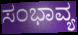
ಸಂಭಾವ್ಯ